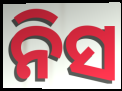
ନିସ